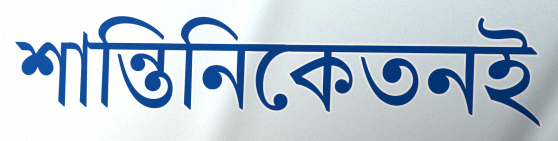
শান্তিনিকেতনই